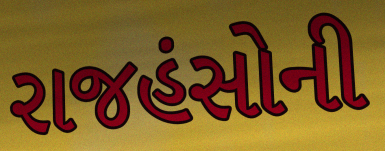
રાજહંસોની